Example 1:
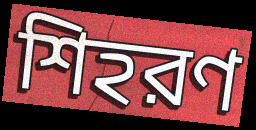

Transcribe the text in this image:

শিহরণ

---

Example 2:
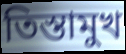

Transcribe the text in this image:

তিস্তামুখ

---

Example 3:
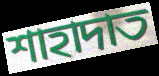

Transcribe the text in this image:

শাহাদাত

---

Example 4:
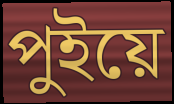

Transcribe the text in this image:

পুইয়ে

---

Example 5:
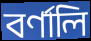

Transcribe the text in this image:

বর্ণালি